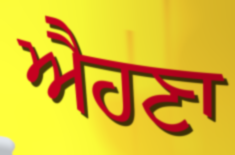
ਐਹਣਾ